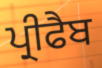
ਪ੍ਰੀਫੈਬ